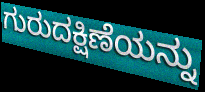
ಗುರುದಕ್ಷಿಣೆಯನ್ನು